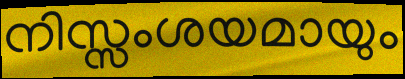
നിസ്സംശയമായും